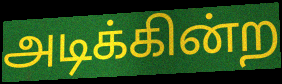
அடிக்கின்ற